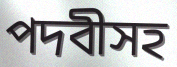
পদবীসহ